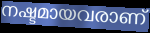
നഷ്ടമായവരാണ്